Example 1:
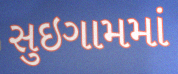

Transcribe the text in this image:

સુઇગામમાં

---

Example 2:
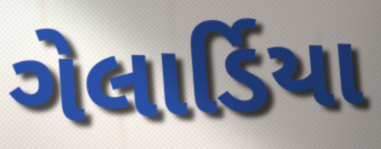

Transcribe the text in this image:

ગેલાર્ડિયા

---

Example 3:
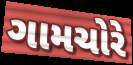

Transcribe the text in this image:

ગામચોરે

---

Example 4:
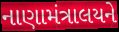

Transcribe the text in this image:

નાણામંત્રાલયને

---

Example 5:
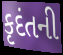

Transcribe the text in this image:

કૃદંતની